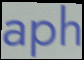
aph